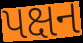
પક્ષન